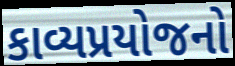
કાવ્યપ્રયોજનો